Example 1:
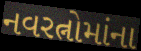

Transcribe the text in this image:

નવરત્નોમાંના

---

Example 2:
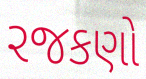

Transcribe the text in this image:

રજકણો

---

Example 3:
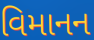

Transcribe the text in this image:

વિમાનન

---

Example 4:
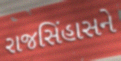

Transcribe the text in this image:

રાજસિંહાસને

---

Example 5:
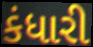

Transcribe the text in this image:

કંધારી